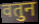
वतुन